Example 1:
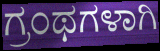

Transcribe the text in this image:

ಗ್ರಂಥಗಳಾಗಿ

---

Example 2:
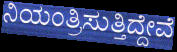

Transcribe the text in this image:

ನಿಯಂತ್ರಿಸುತ್ತಿದ್ದೇವೆ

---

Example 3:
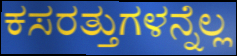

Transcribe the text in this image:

ಕಸರತ್ತುಗಳನ್ನೆಲ್ಲ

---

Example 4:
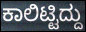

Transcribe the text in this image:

ಕಾಲಿಟ್ಟಿದ್ದು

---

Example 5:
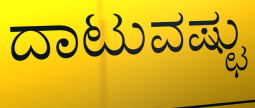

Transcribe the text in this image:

ದಾಟುವಷ್ಟು